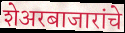
शेअरबाजारांचे